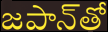
జపాన్‌తో